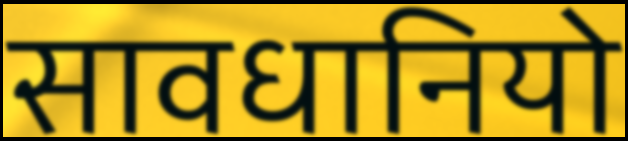
सावधानियो